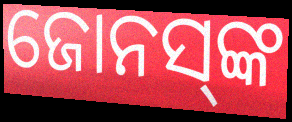
ଜୋନସ୍‌ଙ୍କ